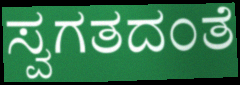
ಸ್ವಗತದಂತೆ